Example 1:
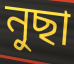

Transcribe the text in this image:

নুছা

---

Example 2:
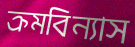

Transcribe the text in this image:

ক্ৰমবিন্যাস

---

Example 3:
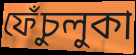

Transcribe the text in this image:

ফেঁচুলুকা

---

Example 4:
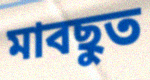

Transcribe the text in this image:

মাবছুত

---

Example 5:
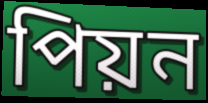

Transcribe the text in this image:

পিয়ন